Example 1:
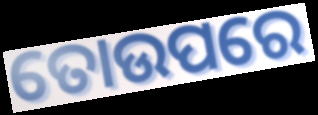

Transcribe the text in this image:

ତୋଉପରେ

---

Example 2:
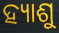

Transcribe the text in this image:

ହ୍ୟାଶୁ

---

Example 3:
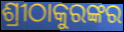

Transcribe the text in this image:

ଶ୍ରୀଠାକୁରଙ୍କର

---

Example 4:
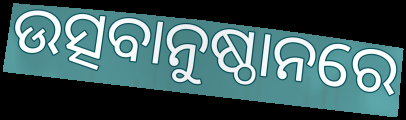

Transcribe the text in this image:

ଉତ୍ସବାନୁଷ୍ଠାନରେ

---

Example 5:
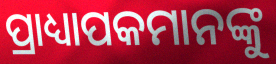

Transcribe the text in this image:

ପ୍ରାଧ୍ୟାପକମାନଙ୍କୁ